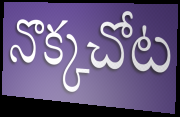
నొక్కచోట